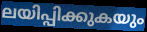
ലയിപ്പിക്കുകയും